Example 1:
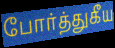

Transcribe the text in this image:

போர்த்துகீய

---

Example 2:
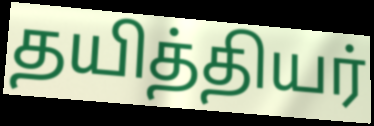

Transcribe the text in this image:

தயித்தியர்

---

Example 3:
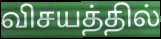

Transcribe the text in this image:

விசயத்தில்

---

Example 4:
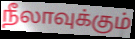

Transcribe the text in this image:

நீலாவுக்கும்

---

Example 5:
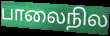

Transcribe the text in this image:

பாலைநில